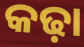
କଢ଼ା